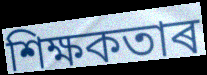
শিক্ষকতাৰ